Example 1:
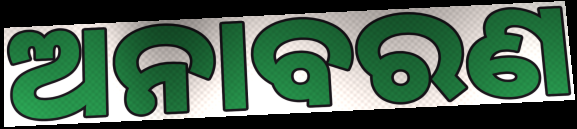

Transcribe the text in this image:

ଅନାବରଣ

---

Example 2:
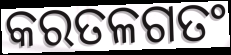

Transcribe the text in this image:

କରତଳଗତଂ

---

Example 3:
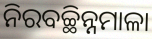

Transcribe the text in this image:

ନିରବଚ୍ଛିନ୍ନମାଳା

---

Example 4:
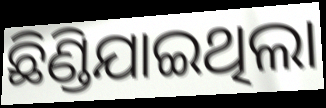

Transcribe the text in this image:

ଛିଣ୍ଡିଯାଇଥିଲା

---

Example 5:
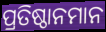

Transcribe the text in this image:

ପ୍ରତିଷ୍ଠାନମାନ